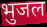
भुजल